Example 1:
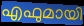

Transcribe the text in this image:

എഫുമായി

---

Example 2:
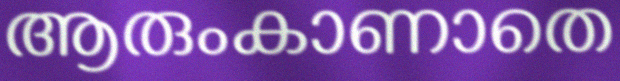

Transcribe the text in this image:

ആരുംകാണാതെ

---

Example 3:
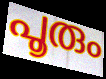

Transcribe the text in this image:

പൂരും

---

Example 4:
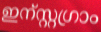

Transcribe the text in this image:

ഇന്സ്റ്റഗ്രാം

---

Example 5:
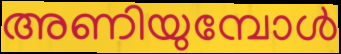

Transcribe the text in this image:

അണിയുമ്പോൾ